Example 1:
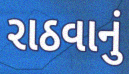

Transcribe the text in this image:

રાઠવાનું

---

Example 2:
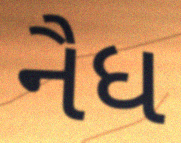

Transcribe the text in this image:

નૈધ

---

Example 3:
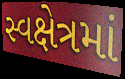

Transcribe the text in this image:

સ્વક્ષેત્રમાં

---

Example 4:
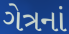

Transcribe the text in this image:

ગેત્રનાં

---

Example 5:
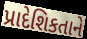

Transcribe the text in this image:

પ્રાદેશિકતાને